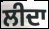
ਲੀਦਾ